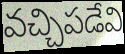
వచ్చిపడేవి